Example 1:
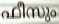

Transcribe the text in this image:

ഫീസും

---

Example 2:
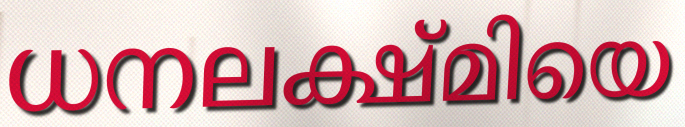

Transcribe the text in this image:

ധനലക്ഷ്മിയെ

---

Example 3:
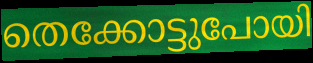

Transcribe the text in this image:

തെക്കോട്ടുപോയി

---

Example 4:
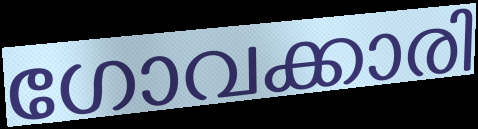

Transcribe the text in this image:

ഗോവക്കാരി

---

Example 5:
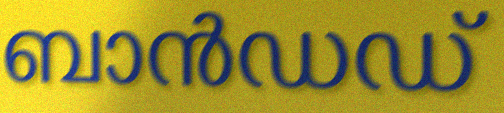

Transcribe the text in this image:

ബാൻഡഡ്